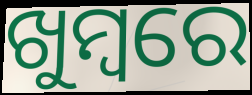
ଖୁମ୍ବରେ